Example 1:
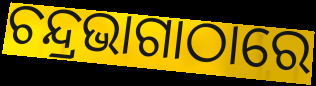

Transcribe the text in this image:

ଚନ୍ଦ୍ରଭାଗାଠାରେ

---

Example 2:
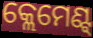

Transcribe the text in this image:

କ୍ଲେମେଣ୍ଟ୍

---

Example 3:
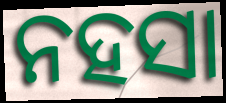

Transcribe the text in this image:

ନହସା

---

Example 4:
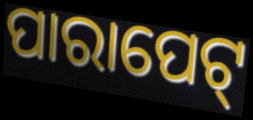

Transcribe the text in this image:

ପାରାପେଟ୍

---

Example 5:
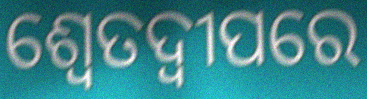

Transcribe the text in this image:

ଶ୍ୱେତଦ୍ୱୀପରେ